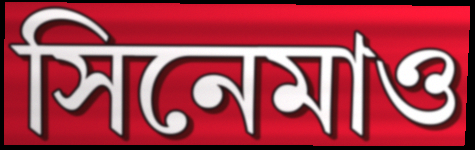
সিনেমাও